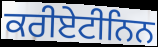
ਕਰੀਏਟੀਨਿਨ